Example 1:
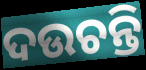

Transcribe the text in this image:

ଦଉଚନ୍ତି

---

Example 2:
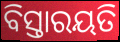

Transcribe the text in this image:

ବିସ୍ତାରୟତି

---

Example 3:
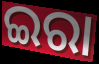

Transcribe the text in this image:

ଇରା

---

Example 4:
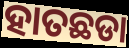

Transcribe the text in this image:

ହାତଛଡା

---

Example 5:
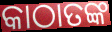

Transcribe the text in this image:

କାଠାତଙ୍କ